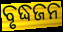
ବୃଦ୍ଧଜନ